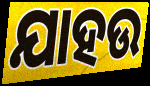
ଯାହଉ